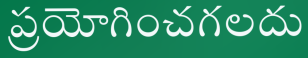
ప్రయోగించగలదు